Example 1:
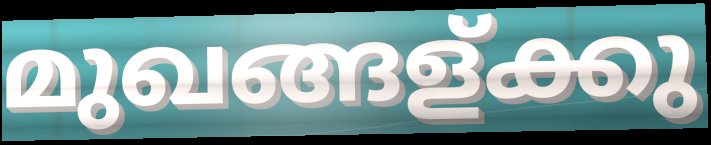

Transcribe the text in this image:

മുഖങ്ങള്ക്കു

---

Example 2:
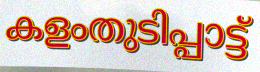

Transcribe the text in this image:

കളംതുടിപ്പാട്ട്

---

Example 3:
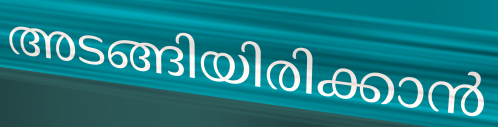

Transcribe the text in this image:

അടങ്ങിയിരിക്കാൻ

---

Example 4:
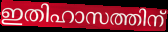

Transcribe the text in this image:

ഇതിഹാസത്തിന്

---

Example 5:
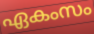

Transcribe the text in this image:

ഏകംസം